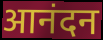
आनंदन